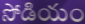
సోడియం